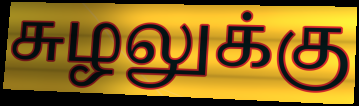
சுழலுக்கு